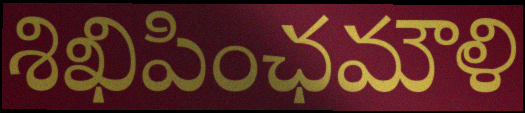
శిఖిపింఛమౌళి